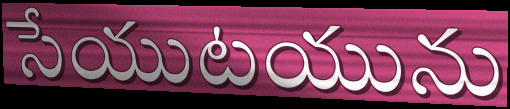
సేయుటయును